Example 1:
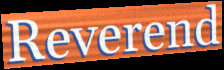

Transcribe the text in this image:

Reverend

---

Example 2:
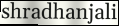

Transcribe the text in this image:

shradhanjali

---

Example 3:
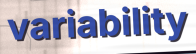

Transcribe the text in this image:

variability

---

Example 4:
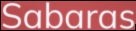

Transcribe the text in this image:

Sabaras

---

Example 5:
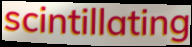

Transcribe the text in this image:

scintillating